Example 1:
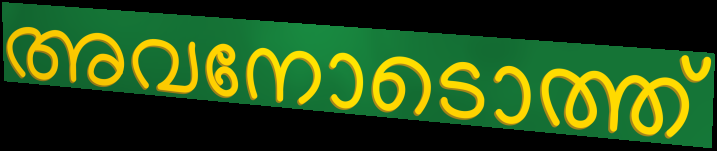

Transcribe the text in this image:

അവനോടൊത്ത്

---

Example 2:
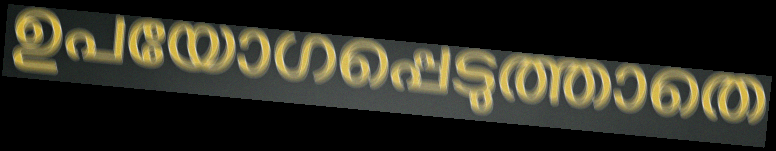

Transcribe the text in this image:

ഉപയോഗപ്പെടുത്താതെ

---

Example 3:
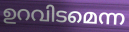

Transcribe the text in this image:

ഉറവിടമെന്ന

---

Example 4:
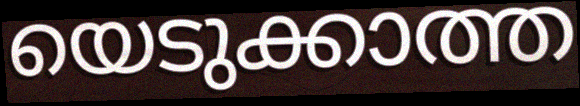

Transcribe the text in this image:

യെടുക്കാത്ത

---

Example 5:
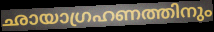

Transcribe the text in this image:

ഛായാഗ്രഹണത്തിനും